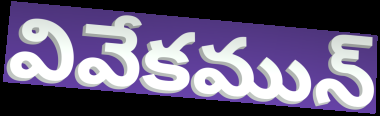
వివేకమున్